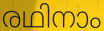
രഥിനാം